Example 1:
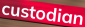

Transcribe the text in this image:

custodian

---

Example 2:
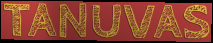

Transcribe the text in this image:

TANUVAS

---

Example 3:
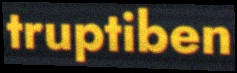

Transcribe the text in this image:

truptiben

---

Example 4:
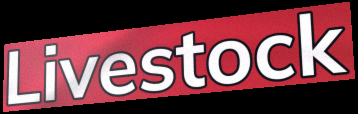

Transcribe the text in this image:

Livestock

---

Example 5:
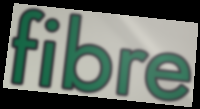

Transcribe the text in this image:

fibre